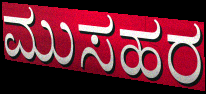
ಮುಸಹರ